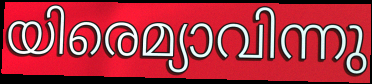
യിരെമ്യാവിന്നു